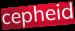
cepheid